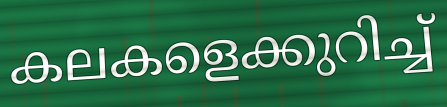
കലകളെക്കുറിച്ച്